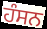
ਹੰਸਨ